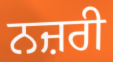
ਨਜ਼ਰੀ